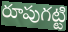
రూపుగట్టి